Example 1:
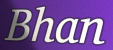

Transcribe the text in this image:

Bhan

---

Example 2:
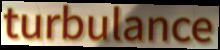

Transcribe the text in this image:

turbulance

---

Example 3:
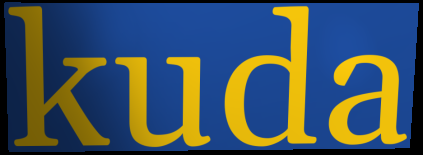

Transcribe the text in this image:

kuda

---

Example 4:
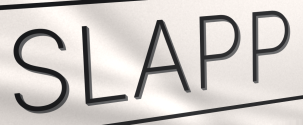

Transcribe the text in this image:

SLAPP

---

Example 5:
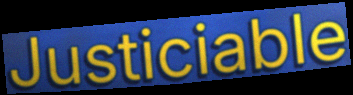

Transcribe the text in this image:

Justiciable